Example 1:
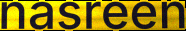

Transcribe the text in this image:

nasreen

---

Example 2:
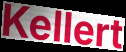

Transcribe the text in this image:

Kellert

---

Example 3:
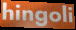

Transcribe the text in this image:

hingoli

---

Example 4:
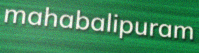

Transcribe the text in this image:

mahabalipuram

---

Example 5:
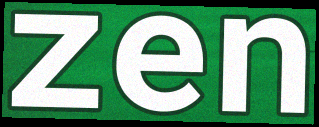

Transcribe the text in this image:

zen